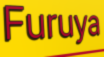
Furuya